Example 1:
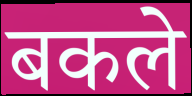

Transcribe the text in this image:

बकले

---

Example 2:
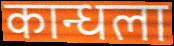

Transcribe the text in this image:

कान्धला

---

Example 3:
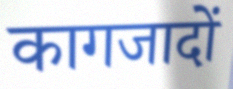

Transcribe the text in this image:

कागजादों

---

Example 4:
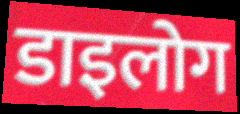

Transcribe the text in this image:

डाइलोग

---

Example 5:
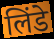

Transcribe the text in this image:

लिंडे